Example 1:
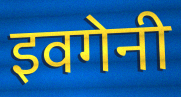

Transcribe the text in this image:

इवगेनी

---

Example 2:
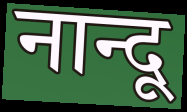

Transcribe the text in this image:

नान्दू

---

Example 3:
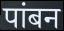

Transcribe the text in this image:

पांबन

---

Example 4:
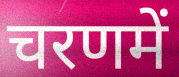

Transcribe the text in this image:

चरणमें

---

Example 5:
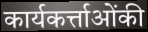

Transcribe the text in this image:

कार्यकर्त्ताओंकी